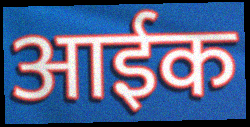
आईक